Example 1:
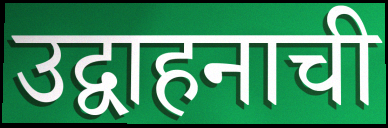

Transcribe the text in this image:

उद्वाहनाची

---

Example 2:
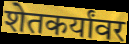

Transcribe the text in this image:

शेतकर्यांवर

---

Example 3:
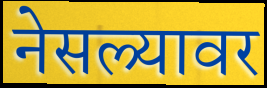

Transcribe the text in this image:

नेसल्यावर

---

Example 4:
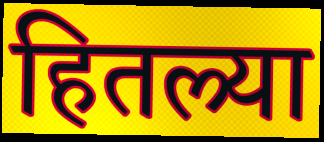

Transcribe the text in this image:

हितल्या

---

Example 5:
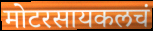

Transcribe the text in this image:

मोटरसायकलचं